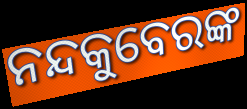
ନନ୍ଦକୁବେରଙ୍କ